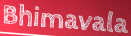
Bhimavala